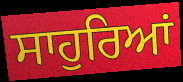
ਸਾਹੁਰਿਆਂ